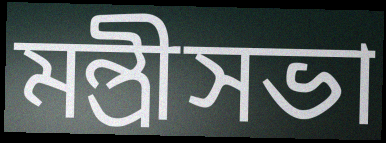
মন্ত্রীসভা